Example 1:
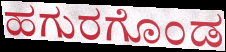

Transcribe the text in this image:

ಹಗುರಗೊಂಡ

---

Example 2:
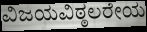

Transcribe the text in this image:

ವಿಜಯವಿಠ್ಠಲರೇಯ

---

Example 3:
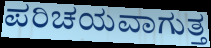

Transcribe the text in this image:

ಪರಿಚಯವಾಗುತ್ತ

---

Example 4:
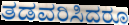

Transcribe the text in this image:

ತಡವರಿಸಿದರೂ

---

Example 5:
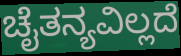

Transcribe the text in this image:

ಚೈತನ್ಯವಿಲ್ಲದೆ